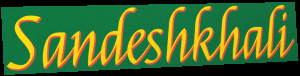
Sandeshkhali